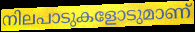
നിലപാടുകളോടുമാണ്